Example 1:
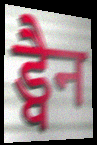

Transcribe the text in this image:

ड्वैन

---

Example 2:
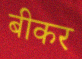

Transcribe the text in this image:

बीकर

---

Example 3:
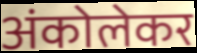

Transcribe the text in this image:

अंकोलेकर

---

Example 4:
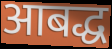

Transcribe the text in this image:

आबद्ध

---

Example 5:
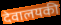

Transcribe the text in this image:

देवालयकी